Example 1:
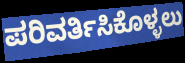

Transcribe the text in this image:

ಪರಿವರ್ತಿಸಿಕೊಳ್ಳಲು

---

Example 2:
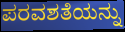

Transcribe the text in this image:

ಪರವಶತೆಯನ್ನು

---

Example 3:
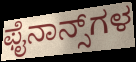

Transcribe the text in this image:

ಫೈನಾನ್ಸ್‌ಗಳ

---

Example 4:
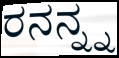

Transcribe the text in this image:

ರನನ್ನ್ನ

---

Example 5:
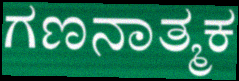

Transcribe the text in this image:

ಗಣನಾತ್ಮಕ